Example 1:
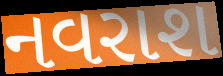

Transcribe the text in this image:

નવરાશ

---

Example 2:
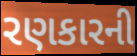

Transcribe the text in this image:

રણકારની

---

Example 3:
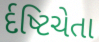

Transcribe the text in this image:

ર્દષ્ટિચેતા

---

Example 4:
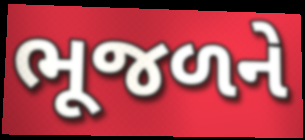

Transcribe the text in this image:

ભૂજળને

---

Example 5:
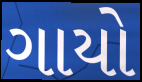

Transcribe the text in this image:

ગાયો